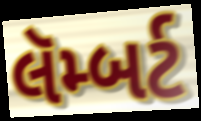
લૅમ્બર્ટ